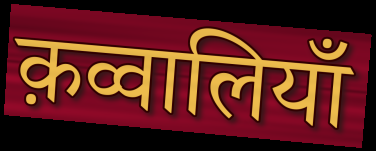
क़व्वालियाँ